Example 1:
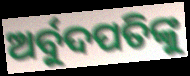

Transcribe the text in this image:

ଅର୍ବୁଦପତିଙ୍କୁ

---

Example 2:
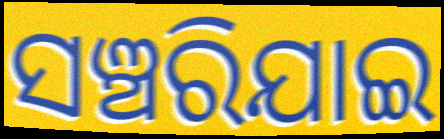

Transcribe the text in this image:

ସଞ୍ଚରିଯାଇ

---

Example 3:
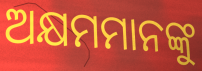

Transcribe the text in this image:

ଅକ୍ଷମମାନଙ୍କୁ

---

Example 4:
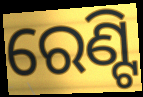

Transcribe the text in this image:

ରେଣ୍ଟି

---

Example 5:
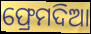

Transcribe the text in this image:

ଫ୍ରେମଦିଆ